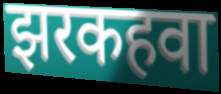
झरकहवा